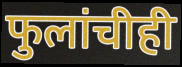
फुलांचीही